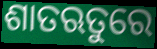
ଶାତଋତୁରେ